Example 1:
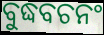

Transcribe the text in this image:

ବୁଦ୍ଧବଚନଂ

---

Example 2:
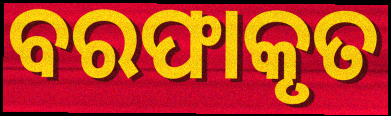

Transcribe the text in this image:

ବରଫାକୃତ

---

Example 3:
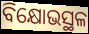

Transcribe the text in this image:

ବିକ୍ଷୋଭସ୍ଥଳ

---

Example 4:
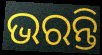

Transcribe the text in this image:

ଭରନ୍ତି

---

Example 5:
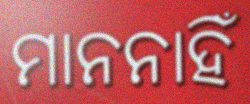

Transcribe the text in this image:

ମାନନାହିଁ